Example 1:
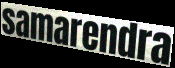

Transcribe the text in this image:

samarendra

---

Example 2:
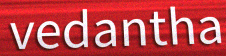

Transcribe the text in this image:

vedantha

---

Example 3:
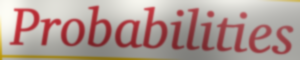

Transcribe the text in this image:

Probabilities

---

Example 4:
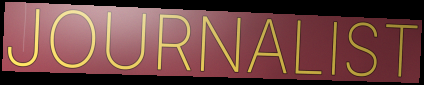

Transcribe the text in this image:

JOURNALIST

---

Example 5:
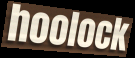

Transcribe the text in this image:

hoolock